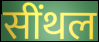
सींथल